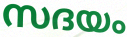
സദയം